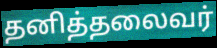
தனித்தலைவர்